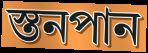
স্তনপান